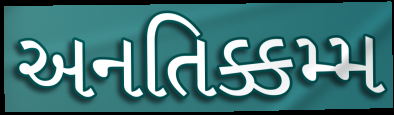
અનતિક્કમ્મ